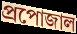
প্রপোজাল